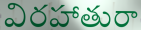
విరహాతురా